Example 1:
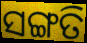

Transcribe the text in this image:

ସଙ୍ଗତି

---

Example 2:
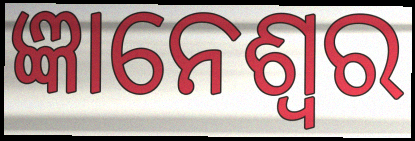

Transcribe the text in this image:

ଜ୍ଞାନେଶ୍ୱର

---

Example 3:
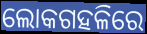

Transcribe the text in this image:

ଲୋକଗହଳିରେ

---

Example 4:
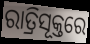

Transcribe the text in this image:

ରାତ୍ରିସୂକ୍ତରେ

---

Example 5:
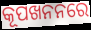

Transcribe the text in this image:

କୂପଖନନରେ